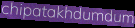
chipatakhdumdum